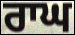
ਰਾਘ